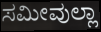
ಸಮೀವುಲ್ಲಾ